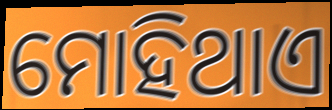
ମୋହିଥାଏ